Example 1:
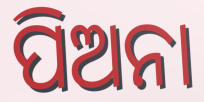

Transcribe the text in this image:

ପିଅନା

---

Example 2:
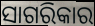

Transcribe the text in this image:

ସାଗରିକାର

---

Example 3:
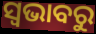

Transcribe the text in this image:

ସ୍ୱଭାବରୁ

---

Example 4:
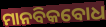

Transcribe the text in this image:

ମାନବିକବୋଧ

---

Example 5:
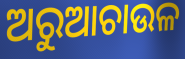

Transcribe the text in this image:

ଅରୁଆଚାଉଳ